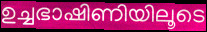
ഉച്ചഭാഷിണിയിലൂടെ